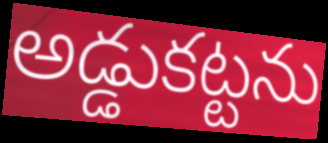
అడ్డుకట్టను